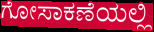
ಗೋಸಾಕಣೆಯಲ್ಲಿ